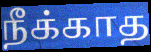
நீக்காத